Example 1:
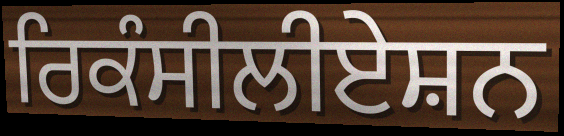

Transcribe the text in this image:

ਰਿਕੰਸੀਲੀਏਸ਼ਨ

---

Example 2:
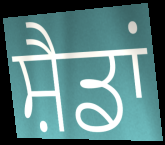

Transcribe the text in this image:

ਸ਼ੈਡਾਂ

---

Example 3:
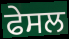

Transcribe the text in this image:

ਫੇਸਲ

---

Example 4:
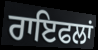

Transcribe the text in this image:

ਰਾਇਫਲਾਂ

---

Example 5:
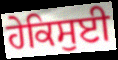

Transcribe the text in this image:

ਹੇਕਿਸੁਈ